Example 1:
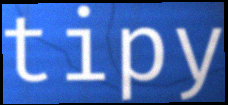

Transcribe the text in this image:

tipy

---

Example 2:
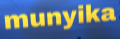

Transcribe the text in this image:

munyika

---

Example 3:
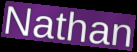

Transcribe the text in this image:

Nathan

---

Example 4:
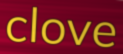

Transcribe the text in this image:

clove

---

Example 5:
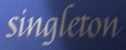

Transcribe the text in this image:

singleton